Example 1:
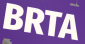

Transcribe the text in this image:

BRTA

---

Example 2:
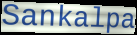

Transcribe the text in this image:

Sankalpa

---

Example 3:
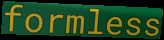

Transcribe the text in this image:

formless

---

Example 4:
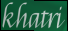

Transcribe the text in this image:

khatri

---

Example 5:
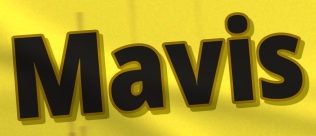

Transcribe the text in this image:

Mavis